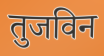
तुजविन